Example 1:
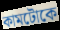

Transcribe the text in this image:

কামটোকে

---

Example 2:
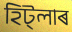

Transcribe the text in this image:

হিট্‌লাৰ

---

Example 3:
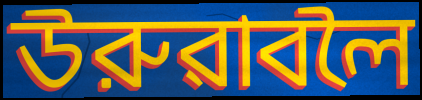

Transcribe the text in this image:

উৰুৱাবলৈ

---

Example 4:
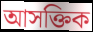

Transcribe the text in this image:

আসক্তিক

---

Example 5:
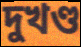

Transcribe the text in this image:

দুখণ্ড